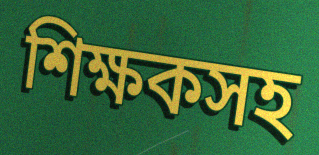
শিক্ষকসহ